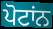
ਪੋਟਾਂਨ